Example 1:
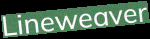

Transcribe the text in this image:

Lineweaver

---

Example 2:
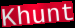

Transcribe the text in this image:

Khunt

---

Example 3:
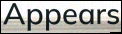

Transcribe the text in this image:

Appears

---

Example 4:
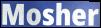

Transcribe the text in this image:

Mosher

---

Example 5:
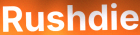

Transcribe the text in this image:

Rushdie